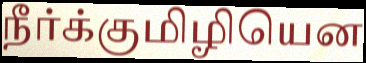
நீர்க்குமிழியென